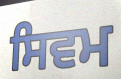
ਸਿਵਮ